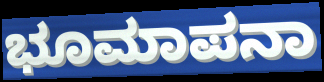
ಭೂಮಾಪನಾ